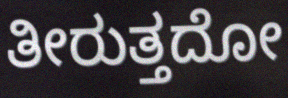
ತೀರುತ್ತದೋ